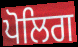
ਪੋਲਿਗ